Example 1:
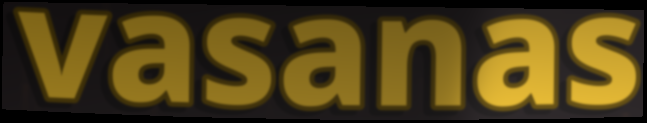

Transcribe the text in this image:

vasanas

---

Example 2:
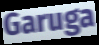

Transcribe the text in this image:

Garuga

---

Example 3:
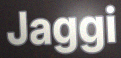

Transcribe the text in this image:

Jaggi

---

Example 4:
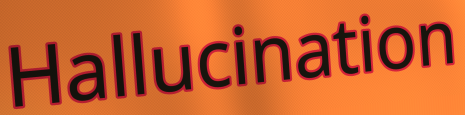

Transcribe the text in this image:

Hallucination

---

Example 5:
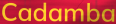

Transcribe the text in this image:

Cadamba